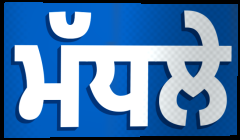
ਮੱਧਲੇ